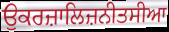
ਉਕਰਜ਼ਾਲਿਜ਼ਨੀਤਸੀਆ